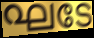
ഘടേ